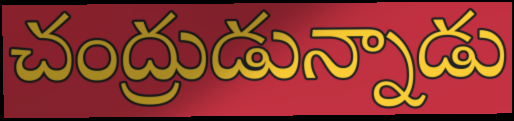
చంద్రుడున్నాడు